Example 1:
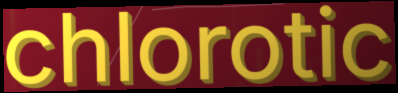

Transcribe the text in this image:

chlorotic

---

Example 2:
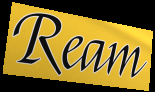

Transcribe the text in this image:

Ream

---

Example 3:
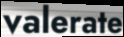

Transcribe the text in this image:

valerate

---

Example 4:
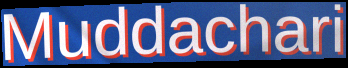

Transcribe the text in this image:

Muddachari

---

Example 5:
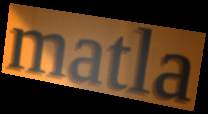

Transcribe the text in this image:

matla